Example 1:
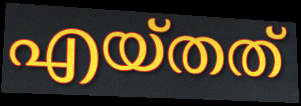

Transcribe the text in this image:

എയ്തത്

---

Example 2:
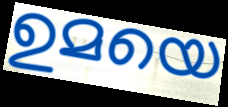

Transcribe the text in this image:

ഉമയെ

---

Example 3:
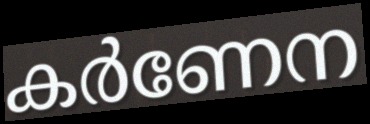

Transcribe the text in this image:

കർണേന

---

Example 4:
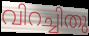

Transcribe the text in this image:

വിറച്ചിതു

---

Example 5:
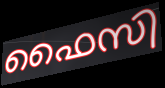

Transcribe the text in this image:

ഫൈസി